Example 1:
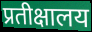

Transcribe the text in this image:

प्रतीक्षालय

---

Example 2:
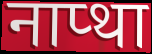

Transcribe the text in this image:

नाप्था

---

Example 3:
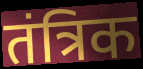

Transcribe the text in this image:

तंत्रिक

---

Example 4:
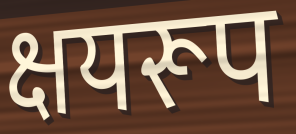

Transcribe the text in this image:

क्षयरूप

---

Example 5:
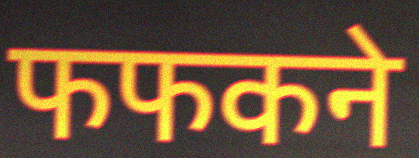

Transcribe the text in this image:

फफकने